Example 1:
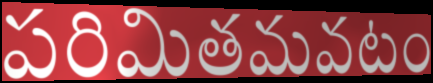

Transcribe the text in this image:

పరిమితమవటం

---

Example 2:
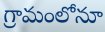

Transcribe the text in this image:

గ్రామంలోనూ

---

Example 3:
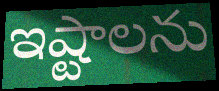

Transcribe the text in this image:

ఇష్టాలను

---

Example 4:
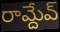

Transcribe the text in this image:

రామ్దేవ్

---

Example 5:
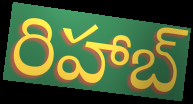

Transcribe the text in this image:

రిహాబ్